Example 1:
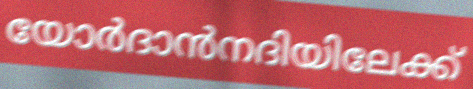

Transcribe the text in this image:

യോർദാൻനദിയിലേക്ക്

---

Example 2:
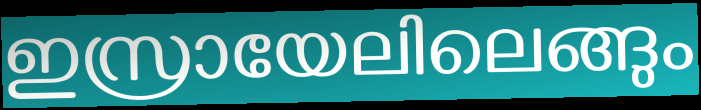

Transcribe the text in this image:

ഇസ്രായേലിലെങ്ങും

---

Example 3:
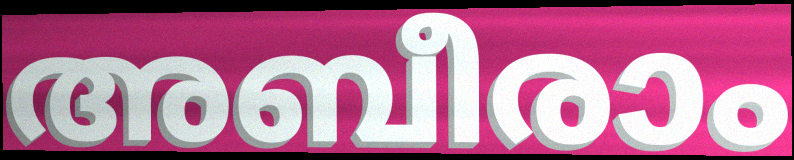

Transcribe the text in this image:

അബീരാം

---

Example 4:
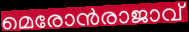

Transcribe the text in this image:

മെരോൻരാജാവ്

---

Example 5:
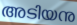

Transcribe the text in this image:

അടിയനു